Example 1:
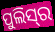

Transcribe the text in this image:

ପୁଲିସ୍‌ର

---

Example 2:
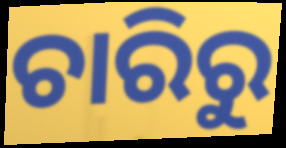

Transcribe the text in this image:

ଚାରିରୁ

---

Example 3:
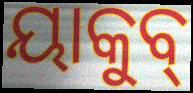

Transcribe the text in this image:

ୟାକୁବ୍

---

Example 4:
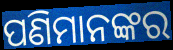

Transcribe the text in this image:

ପଣିମାନଙ୍କର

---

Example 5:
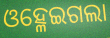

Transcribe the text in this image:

ଓହ୍ଳେଇଗଲା